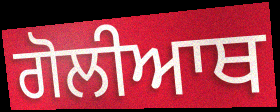
ਗੋਲੀਆਥ